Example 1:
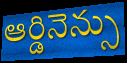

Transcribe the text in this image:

ఆర్డినెన్సు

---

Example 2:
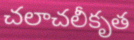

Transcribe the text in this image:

చలాచలీకృత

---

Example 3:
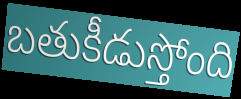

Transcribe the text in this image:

బతుకీడుస్తోంది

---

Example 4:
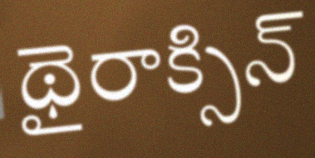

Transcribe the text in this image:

థైరాక్సిన్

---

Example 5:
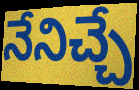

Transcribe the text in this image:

నేనిచ్చే